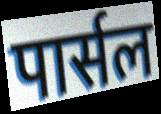
पार्सल